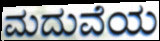
ಮದುವೆಯ